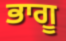
ਭਾਗੂ